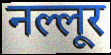
नल्लूर